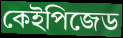
কেইপিজেড